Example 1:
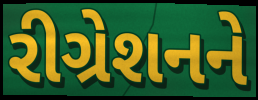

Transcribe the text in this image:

રીગ્રેશનને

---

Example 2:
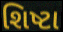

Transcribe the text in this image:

શિષ્ટા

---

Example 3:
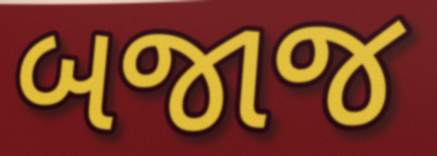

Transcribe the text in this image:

બજાજ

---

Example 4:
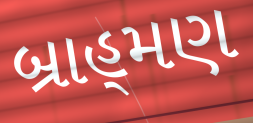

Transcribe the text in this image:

બ્રાહ્‌મણ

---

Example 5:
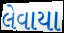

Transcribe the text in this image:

લેવાયા